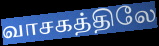
வாசகத்திலே